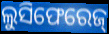
ଲୁସିଫେରେଜ୍